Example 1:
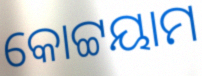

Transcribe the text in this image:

କୋଟ୍ଟୟାମ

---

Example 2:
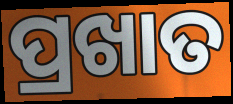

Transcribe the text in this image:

ପ୍ରଖାତ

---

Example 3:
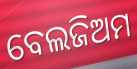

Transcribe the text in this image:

ବେଲଜିଅମ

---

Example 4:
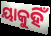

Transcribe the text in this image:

ୟାକୁହିଁ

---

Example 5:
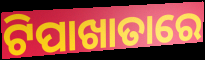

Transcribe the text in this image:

ଟିପାଖାତାରେ